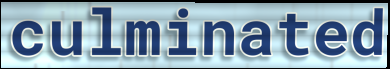
culminated